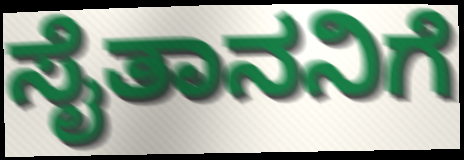
ಸೈತಾನನಿಗೆ